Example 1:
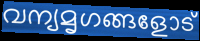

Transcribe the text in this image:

വന്യമൃഗങ്ങളോട്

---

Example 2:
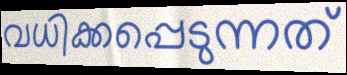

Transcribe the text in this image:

വധിക്കപ്പെടുന്നത്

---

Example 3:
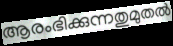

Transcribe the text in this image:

ആരംഭിക്കുന്നതുമുതൽ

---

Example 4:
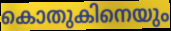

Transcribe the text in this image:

കൊതുകിനെയും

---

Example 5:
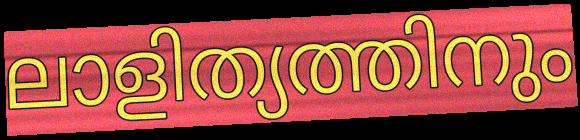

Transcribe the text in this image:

ലാളിത്യത്തിനും